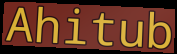
Ahitub